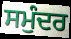
ਸਮੁੰਦਰ